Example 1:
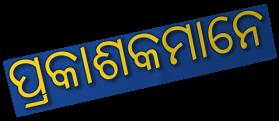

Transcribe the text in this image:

ପ୍ରକାଶକମାନେ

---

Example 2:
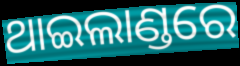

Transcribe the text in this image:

ଥାଇଲାଣ୍ଡରେ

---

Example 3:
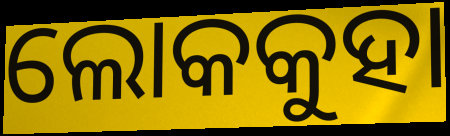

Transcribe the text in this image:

ଲୋକକୁହା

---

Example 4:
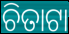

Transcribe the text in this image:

ଚିତାଟା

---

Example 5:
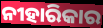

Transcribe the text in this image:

ନୀହାରିକାର